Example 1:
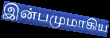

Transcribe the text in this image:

இன்பமுமாகிய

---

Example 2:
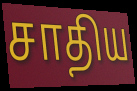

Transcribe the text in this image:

சாதிய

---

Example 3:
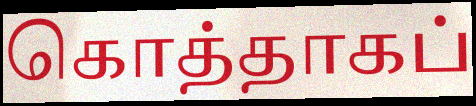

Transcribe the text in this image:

கொத்தாகப்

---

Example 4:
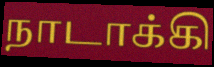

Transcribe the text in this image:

நாடாக்கி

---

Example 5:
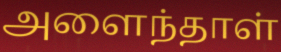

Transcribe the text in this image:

அளைந்தாள்